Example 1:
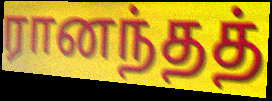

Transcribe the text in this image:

ரானந்தத்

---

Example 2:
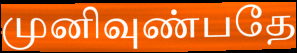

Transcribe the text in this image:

முனிவுண்பதே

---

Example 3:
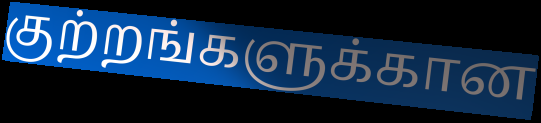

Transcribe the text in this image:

குற்றங்களுக்கான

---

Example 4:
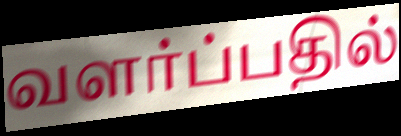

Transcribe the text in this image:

வளர்ப்பதில்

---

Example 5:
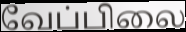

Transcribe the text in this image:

வேப்பிலை